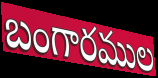
బంగారముల